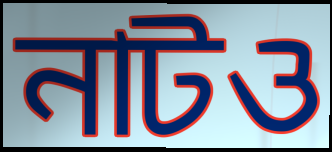
নাটও